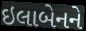
ઇલાબેનને